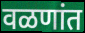
वळणांत